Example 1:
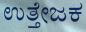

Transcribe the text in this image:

ಉತ್ತೇಜಕ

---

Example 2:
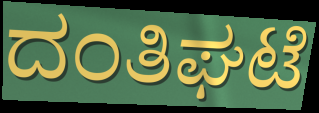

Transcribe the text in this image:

ದಂತಿಘಟೆ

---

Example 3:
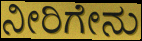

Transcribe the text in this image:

ನೀರಿಗೇನು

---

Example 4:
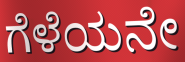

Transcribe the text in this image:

ಗೆಳೆಯನೇ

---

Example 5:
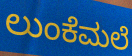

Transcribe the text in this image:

ಲುಂಕೆಮಲೆ